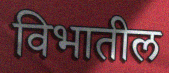
विभातील